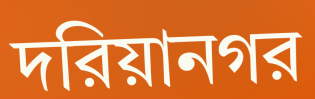
দরিয়ানগর